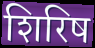
शिरिष